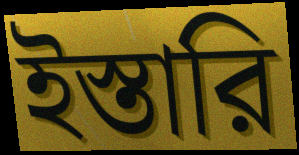
ইস্তারি